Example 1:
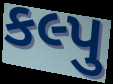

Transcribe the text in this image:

કલ્પુ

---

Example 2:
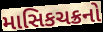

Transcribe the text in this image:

માસિકચક્રનો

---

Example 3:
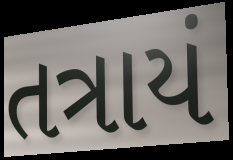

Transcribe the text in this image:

તત્રાયં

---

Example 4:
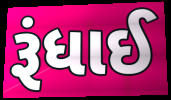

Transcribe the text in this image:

રૂંધાઈ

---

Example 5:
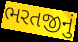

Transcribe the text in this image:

ભરતજીનું